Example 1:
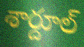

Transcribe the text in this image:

శార్దూల్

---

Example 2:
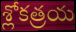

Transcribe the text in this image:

శ్లోకత్రయ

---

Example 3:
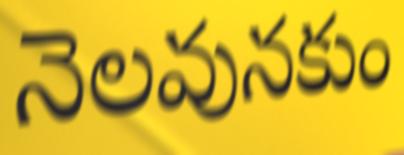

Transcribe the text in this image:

నెలవునకుం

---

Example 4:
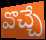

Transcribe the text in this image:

వొచ్చే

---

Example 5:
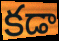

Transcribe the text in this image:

కడా